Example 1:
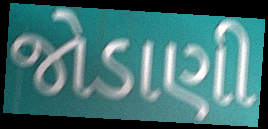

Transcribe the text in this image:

જોડાણી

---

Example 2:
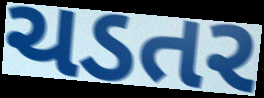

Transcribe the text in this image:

ચડતર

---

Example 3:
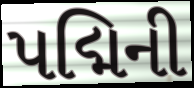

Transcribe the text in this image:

પદ્મિની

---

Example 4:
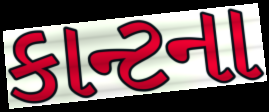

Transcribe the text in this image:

કાન્ટના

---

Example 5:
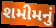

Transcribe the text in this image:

શમીમનું